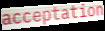
acceptation